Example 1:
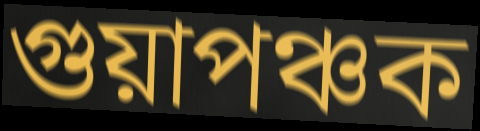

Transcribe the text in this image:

গুয়াপঞ্চক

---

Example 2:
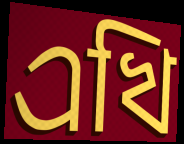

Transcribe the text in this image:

এখি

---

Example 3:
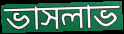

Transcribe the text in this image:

ভাসলাভ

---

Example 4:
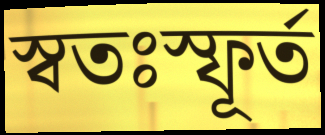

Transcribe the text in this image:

স্বতঃস্ফূর্ত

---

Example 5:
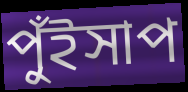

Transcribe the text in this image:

পুঁইসাপ